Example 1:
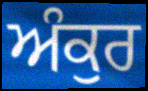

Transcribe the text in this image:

ਅੰਕੁਰ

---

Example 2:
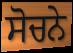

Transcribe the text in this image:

ਸੋਚਨੇ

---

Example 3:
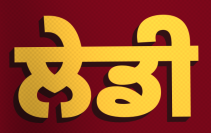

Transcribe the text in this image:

ਲੇਡੀ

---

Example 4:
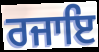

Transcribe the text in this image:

ਰਜਾਇ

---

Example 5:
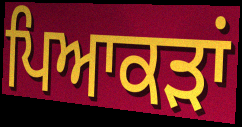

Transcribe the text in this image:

ਪਿਆਕੜਾਂ